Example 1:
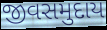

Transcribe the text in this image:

જીવસમુદાય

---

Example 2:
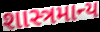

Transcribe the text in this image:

શાસ્ત્રમાન્ય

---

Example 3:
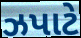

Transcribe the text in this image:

ઝપાટે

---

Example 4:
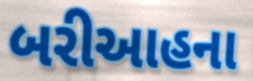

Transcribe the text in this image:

બરીઆહના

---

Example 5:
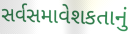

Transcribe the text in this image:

સર્વસમાવેશકતાનું